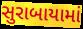
સુરાબાયામાં